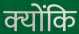
क्‍योंकि